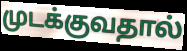
முடக்குவதால்